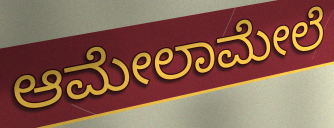
ಆಮೇಲಾಮೇಲೆ